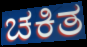
ಚಕಿತ